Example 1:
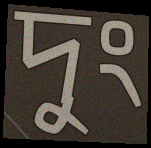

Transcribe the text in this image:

দুং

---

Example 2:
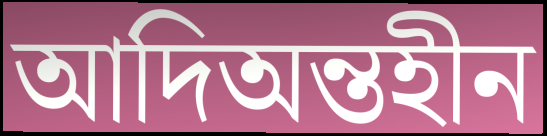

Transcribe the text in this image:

আদিঅন্তহীন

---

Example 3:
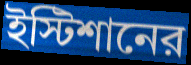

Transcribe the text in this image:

ইস্টিশানের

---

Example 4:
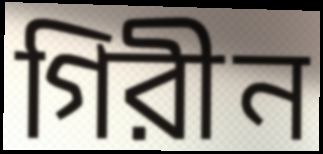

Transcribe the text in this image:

গিরীন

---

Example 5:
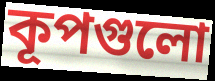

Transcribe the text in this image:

কূপগুলো